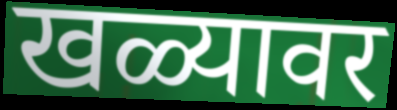
खळ्यावर